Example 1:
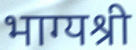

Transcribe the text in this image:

भाग्यश्री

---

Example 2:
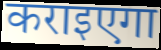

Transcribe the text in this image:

कराइएगा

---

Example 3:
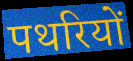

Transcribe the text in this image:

पथरियों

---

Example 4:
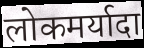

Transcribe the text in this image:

लोकमर्यादा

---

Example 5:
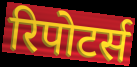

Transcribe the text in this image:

रिपोटर्स